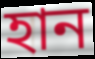
হান